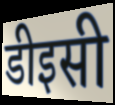
डीइसी